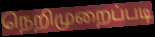
நெறிமுறைப்படி